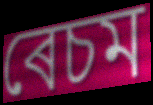
ৰেচম